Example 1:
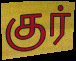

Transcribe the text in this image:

குர்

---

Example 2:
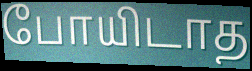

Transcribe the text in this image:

போயிடாத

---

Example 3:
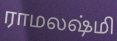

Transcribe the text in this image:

ராமலஷ்மி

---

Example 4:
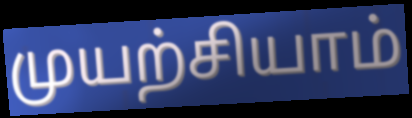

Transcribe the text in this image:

முயற்சியாம்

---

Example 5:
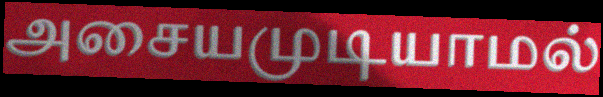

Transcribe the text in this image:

அசையமுடியாமல்